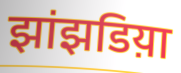
झांझडिय़ा